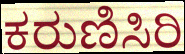
ಕರುಣಿಸಿರಿ